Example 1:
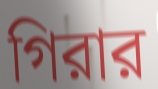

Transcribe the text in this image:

গিরার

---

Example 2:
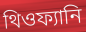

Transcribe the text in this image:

থিওফ্যানি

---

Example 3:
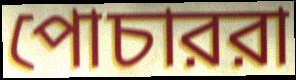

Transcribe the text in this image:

পোচাররা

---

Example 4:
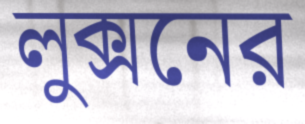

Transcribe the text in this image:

লুক্সনের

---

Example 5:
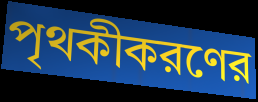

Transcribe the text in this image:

পৃথকীকরণের